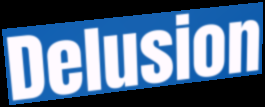
Delusion